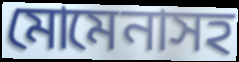
মোমেনাসহ